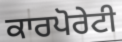
ਕਾਰਪੋਰੇਟੀ